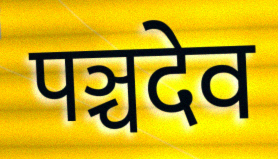
पञ्चदेव